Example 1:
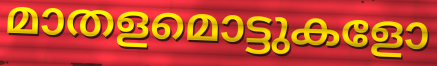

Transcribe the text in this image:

മാതളമൊട്ടുകളോ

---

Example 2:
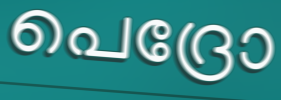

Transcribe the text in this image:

പെദ്രോ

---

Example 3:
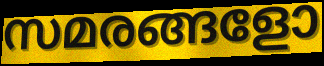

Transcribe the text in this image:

സമരങ്ങളോ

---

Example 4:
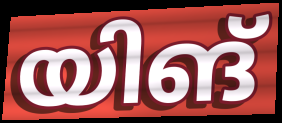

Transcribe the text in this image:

യിങ്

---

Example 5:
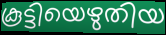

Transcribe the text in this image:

കൂട്ടിയെഴുതിയ